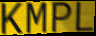
KMPL